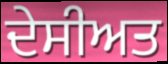
ਦੇਸੀਅਤ